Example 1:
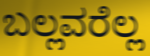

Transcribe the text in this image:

ಬಲ್ಲವರೆಲ್ಲ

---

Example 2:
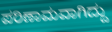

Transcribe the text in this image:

ಪರಿಣಾಮವಾಗಿದ್ದು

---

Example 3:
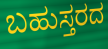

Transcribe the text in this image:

ಬಹುಸ್ತರದ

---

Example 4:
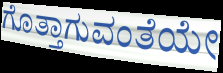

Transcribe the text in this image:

ಗೊತ್ತಾಗುವಂತೆಯೇ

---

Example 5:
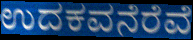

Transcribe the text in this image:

ಉದಕವನೆರೆವೆ